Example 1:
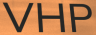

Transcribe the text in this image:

VHP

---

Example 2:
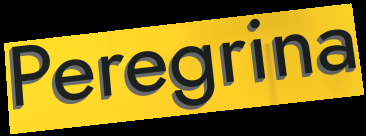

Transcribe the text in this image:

Peregrina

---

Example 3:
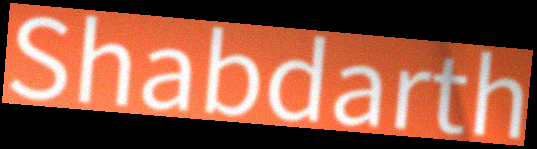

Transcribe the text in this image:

Shabdarth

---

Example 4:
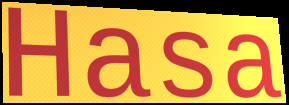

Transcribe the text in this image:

Hasa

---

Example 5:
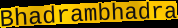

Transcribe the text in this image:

Bhadrambhadra